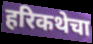
हरिकथेचा